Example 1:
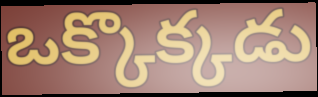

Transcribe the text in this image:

ఒక్కొక్కడు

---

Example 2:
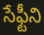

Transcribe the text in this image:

సేఫ్టీని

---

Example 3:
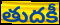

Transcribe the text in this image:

తుదకీ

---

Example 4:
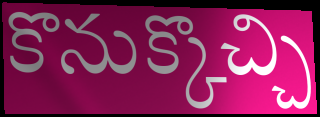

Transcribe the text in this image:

కొనుక్కొచ్చి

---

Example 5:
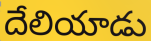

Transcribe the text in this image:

దేలియాడు